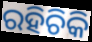
ରହିଚିକି